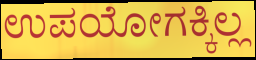
ಉಪಯೋಗಕ್ಕಿಲ್ಲ